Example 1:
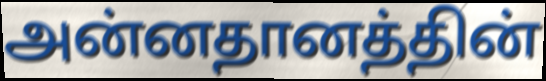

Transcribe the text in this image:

அன்னதானத்தின்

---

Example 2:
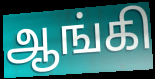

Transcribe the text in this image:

ஆங்கி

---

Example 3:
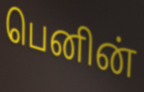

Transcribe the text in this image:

பெனின்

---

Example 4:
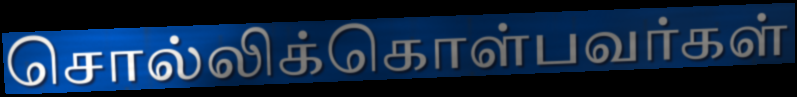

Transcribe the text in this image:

சொல்லிக்கொள்பவர்கள்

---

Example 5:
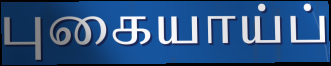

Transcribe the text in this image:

புகையாய்ப்